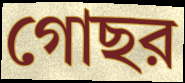
গোছর